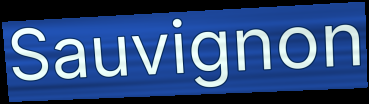
Sauvignon